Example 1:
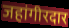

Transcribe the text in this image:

जहांगीरदार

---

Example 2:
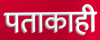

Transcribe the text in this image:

पताकाही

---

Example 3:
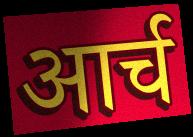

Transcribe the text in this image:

आर्च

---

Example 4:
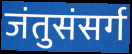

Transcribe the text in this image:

जंतुसंसर्ग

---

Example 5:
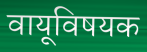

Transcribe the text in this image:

वायूविषयक